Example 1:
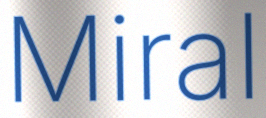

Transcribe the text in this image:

Miral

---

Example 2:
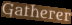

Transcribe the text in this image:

Gatherer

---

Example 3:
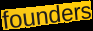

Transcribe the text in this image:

founders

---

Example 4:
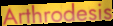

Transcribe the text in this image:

Arthrodesis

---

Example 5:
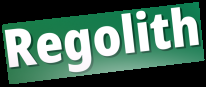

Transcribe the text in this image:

Regolith